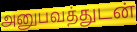
அனுபவத்துடன்